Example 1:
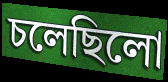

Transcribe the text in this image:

চলেছিলো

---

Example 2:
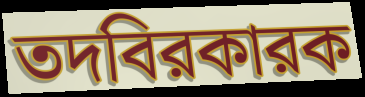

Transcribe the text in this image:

তদবিরকারক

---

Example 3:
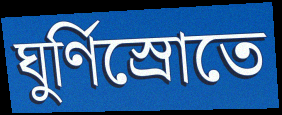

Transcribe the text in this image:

ঘুর্ণিস্রোতে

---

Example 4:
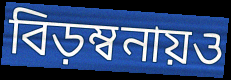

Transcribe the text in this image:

বিড়ম্বনায়ও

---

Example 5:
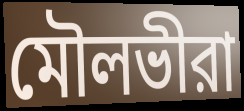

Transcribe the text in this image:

মৌলভীরা